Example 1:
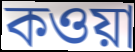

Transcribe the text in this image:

কওয়া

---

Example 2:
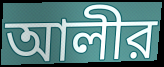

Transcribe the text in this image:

আলীর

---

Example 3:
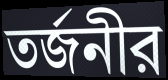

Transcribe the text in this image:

তর্জনীর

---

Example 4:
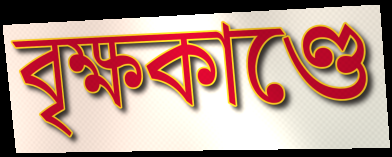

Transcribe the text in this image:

বৃক্ষকাণ্ডে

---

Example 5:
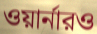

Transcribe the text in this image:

ওয়ার্নারও